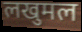
लखुमल